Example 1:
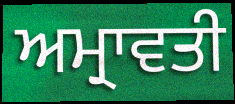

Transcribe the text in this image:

ਅਮ੍ਰਾਵਤੀ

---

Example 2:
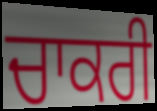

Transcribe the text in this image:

ਚਾਕਰੀ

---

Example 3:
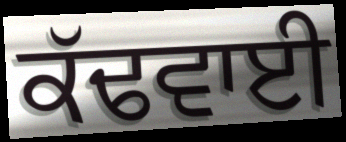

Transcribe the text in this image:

ਕੱਢਵਾਈ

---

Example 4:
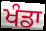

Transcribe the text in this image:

ਖੰਡਾ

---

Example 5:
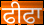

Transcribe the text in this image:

ਫੀਫਾ